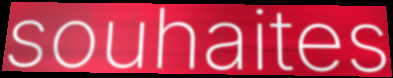
souhaites